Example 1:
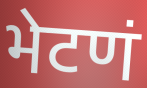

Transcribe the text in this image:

भेटणं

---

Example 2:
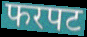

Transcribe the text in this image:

फरपट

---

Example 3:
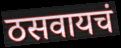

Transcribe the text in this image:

ठसवायचं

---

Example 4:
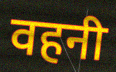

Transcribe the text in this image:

वहनी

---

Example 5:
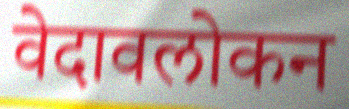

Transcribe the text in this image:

वेदावलोकन